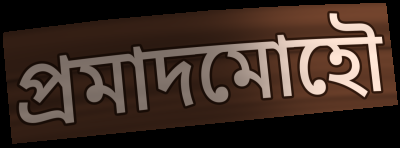
প্রমাদমোহৌ